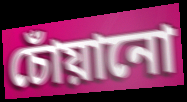
চোঁয়ানো